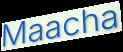
Maacha